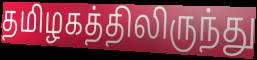
தமிழகத்திலிருந்து